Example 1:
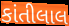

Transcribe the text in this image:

કાંતીલાલ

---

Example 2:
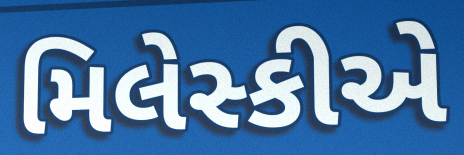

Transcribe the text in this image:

મિલેસ્કીએ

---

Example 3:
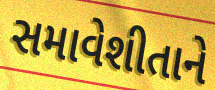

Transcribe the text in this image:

સમાવેશીતાને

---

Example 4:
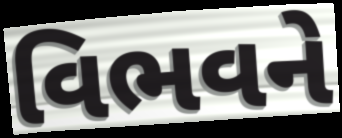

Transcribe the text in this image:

વિભવને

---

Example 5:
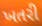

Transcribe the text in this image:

ખતરી